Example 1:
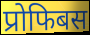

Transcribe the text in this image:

प्रोफिबस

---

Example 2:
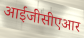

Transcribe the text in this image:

आईजीसीएआर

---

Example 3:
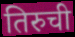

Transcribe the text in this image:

तिरुची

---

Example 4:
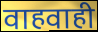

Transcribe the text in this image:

वाहवाही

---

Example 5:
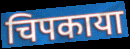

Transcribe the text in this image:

चिपकाया